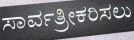
ಸಾರ್ವತ್ರೀಕರಿಸಲು